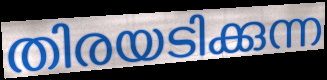
തിരയടിക്കുന്ന